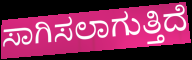
ಸಾಗಿಸಲಾಗುತ್ತಿದೆ